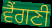
ਵੈਂਗਣੀ